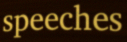
speeches